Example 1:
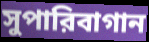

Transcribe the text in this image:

সুপারিবাগান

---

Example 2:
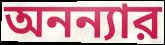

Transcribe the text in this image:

অনন্যার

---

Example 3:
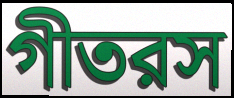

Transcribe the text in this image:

গীতরস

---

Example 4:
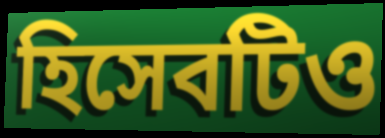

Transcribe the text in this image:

হিসেবটিও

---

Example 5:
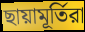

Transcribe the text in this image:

ছায়ামূর্তিরা